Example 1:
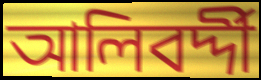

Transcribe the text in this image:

আলিবর্দ্দী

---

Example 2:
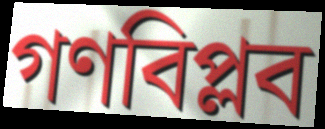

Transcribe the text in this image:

গণবিপ্লব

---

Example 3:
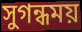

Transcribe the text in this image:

সুগন্ধময়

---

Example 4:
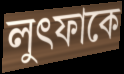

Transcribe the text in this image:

লুৎফাকে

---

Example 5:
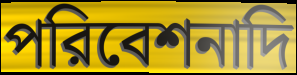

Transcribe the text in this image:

পরিবেশনাদি